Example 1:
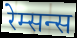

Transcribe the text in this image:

रेम्सन्स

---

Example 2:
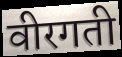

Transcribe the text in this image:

वीरगती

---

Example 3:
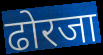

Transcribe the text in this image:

ढोरजा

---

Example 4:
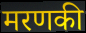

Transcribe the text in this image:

मरणकी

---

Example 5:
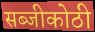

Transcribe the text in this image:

सब्जीकोठी